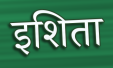
इशिता